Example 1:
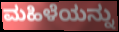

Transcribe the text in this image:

ಮಹಿಳೆಯನ್ನು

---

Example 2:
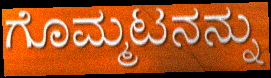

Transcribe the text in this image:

ಗೊಮ್ಮಟನನ್ನು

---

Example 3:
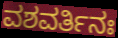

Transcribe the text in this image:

ವಶವರ್ತಿನಃ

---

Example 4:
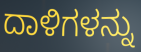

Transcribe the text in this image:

ದಾಳಿಗಳನ್ನು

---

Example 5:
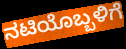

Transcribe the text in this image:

ನಟಿಯೊಬ್ಬಳಿಗೆ